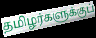
தமிழர்களுக்குப்